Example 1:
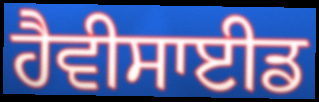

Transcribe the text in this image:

ਹੈਵੀਸਾਈਡ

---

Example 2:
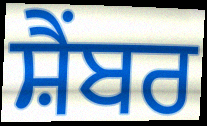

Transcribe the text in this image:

ਸ਼ੈਂਬਰ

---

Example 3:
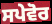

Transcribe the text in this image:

ਸਪੇਵੋਰ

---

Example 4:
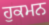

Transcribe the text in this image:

ਹੁਕਮਨ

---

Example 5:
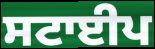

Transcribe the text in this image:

ਸਟਾਈਪ